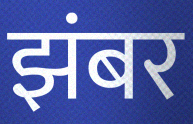
झंबर